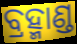
ବ୍ରହ୍ମାଣ୍ଡ